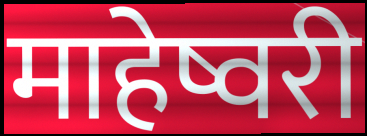
माहेष्वरी